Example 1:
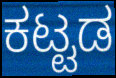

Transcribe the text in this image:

ಕಟ್ಟಡ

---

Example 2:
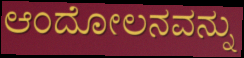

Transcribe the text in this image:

ಆಂದೋಲನವನ್ನು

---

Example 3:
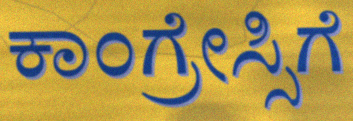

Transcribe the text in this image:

ಕಾಂಗ್ರೇಸ್ಸಿಗೆ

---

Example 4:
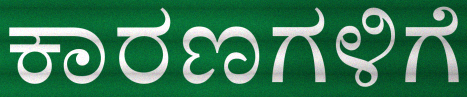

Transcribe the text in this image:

ಕಾರಣಗಳಿಗೆ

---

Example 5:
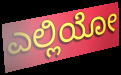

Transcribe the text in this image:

ಎಲ್ಲಿಯೋ